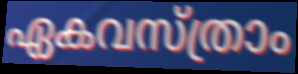
ഏകവസ്ത്രാം